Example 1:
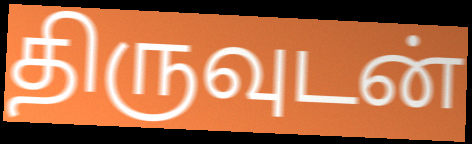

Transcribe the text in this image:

திருவுடன்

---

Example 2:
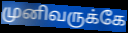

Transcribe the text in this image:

முனிவருக்கே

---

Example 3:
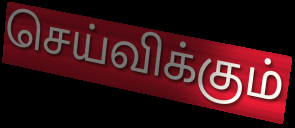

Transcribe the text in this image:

செய்விக்கும்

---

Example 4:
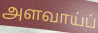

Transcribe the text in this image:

அளவாய்ப்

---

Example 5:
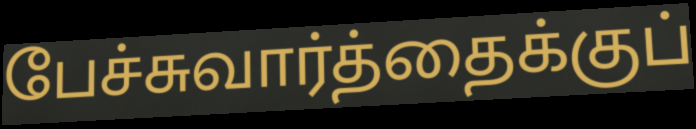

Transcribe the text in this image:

பேச்சுவார்த்தைக்குப்